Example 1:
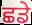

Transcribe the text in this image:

ਛਡੇ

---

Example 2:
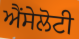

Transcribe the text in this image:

ਐਂਸੇਲੋਟੀ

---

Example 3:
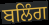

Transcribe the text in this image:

ਬਲਿੰਗ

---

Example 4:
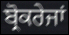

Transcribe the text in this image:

ਬ੍ਰੋਕਰੇਜਾਂ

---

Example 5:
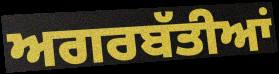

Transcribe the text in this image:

ਅਗਰਬੱਤੀਆਂ